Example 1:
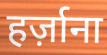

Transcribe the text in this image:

हर्ज़ाना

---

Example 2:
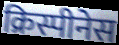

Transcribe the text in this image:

क्रिस्पीनेस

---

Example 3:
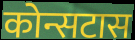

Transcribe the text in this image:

कोन्सटास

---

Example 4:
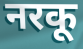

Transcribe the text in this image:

नरकू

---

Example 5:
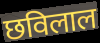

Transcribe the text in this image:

छविलाल